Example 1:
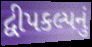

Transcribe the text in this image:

દ્વીપકલ્પનું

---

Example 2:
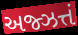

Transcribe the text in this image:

અજ્ઝત્તં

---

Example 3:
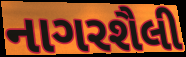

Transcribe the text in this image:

નાગરશૈલી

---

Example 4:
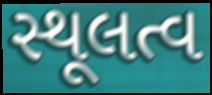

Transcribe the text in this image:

સ્થૂલત્વ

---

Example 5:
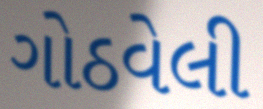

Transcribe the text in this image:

ગોઠવેલી